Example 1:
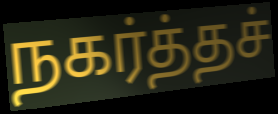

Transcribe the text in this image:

நகர்த்தச்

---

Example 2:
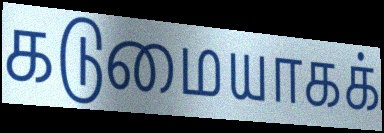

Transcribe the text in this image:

கடுமையாகக்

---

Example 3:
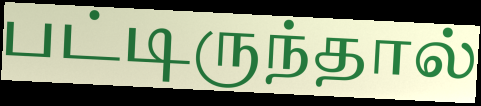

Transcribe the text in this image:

பட்டிருந்தால்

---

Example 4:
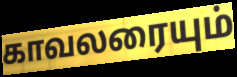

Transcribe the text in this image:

காவலரையும்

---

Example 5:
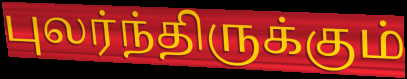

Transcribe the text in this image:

புலர்ந்திருக்கும்